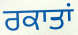
ਰਕਾਤਾਂ